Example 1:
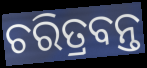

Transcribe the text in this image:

ଚରିତ୍ରବନ୍ତ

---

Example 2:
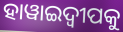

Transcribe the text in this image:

ହାୱାଇଦ୍ଵୀପକୁ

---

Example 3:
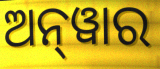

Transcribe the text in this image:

ଅନ୍‌ୱାର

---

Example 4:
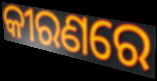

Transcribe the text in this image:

କୀରଣରେ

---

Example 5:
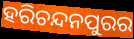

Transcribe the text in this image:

ହରିଚନ୍ଦନପୁରର